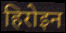
हिरोइन